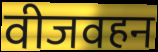
वीजवहन